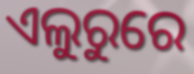
ଏଲୁରୁରେ